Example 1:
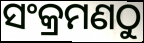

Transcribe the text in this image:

ସଂକ୍ରମଣଠୁ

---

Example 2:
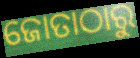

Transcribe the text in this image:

ଜୋତାଠାରୁ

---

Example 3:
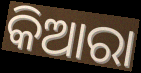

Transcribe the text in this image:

କିଆରା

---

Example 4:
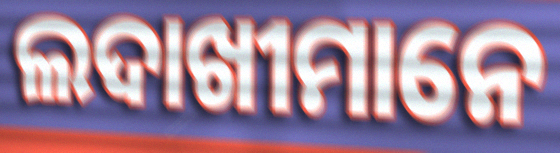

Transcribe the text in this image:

ଲଦାଖୀମାନେ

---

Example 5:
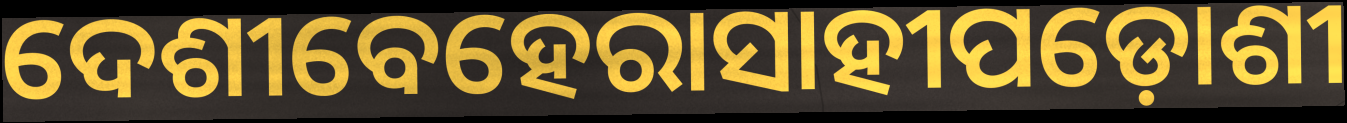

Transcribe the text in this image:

ଦେଶୀବେହେରାସାହୀପଡ଼ୋଶୀ